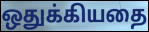
ஒதுக்கியதை